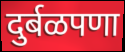
दुर्बळपणा